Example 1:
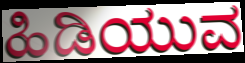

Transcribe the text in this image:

ಹಿಡಿಯುವ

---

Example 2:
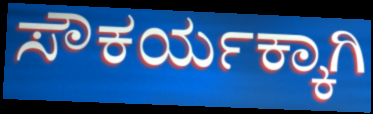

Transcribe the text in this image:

ಸೌಕರ್ಯಕ್ಕಾಗಿ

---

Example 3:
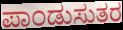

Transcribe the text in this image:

ಪಾಂಡುಸುತರ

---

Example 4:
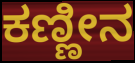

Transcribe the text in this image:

ಕಣ್ಣೀನ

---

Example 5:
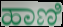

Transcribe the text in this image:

ಹಾಣಿ